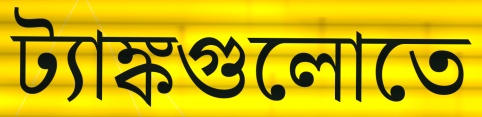
ট্যাঙ্কগুলোতে